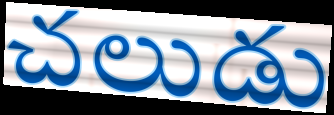
చలుడు